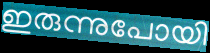
ഇരുന്നുപോയി